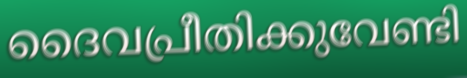
ദൈവപ്രീതിക്കുവേണ്ടി